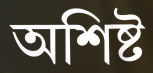
অশিষ্ট